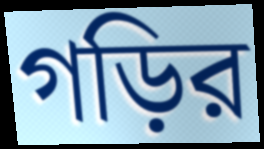
গড়ির